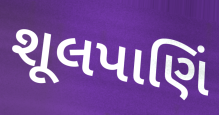
શૂલપાણિં